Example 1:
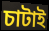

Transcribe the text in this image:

চাটাই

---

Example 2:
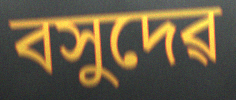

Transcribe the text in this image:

বসুদেৱ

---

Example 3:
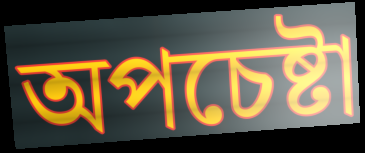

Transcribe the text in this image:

অপচেষ্টা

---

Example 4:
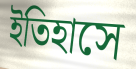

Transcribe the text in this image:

ইতিহাসে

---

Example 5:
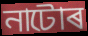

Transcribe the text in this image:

নাটোৰ